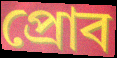
প্রোব